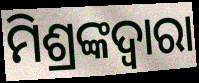
ମିଶ୍ରଙ୍କଦ୍ୱାରା